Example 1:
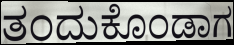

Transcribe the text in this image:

ತಂದುಕೊಂಡಾಗ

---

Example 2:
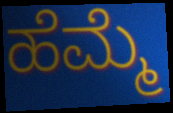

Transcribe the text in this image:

ಹೆಮ್ಮೆ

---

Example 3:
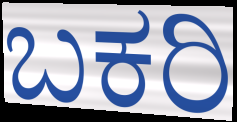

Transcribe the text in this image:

ಬಕರಿ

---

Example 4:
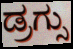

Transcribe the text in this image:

ಡ್ರಗ್ಸು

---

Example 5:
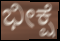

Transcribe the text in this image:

ಭೀಕ್ಷೆ